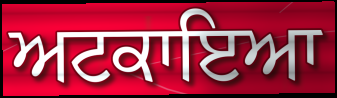
ਅਟਕਾਇਆ